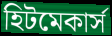
হিটমেকার্স